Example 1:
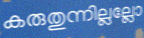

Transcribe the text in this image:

കരുതുന്നില്ലല്ലോ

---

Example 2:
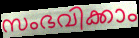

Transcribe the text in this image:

സംഭവിക്കാം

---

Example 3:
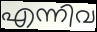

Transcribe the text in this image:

എന്നിവ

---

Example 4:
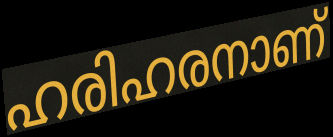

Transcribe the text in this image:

ഹരിഹരനാണ്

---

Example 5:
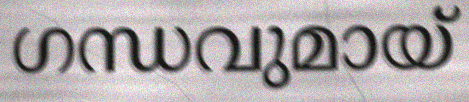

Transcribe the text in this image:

ഗന്ധവുമായ്